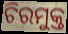
ଚିରମୁକ୍ତ